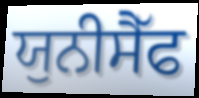
ਯੁਨੀਸੈੱਫ